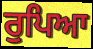
ਰੁਪਿਆ